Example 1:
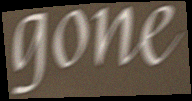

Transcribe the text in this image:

gone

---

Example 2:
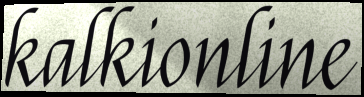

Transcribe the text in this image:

kalkionline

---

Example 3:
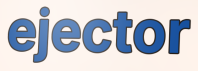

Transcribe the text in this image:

ejector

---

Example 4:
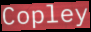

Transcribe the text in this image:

Copley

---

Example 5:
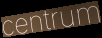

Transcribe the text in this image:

centrum